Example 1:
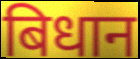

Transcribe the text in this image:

बिधान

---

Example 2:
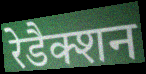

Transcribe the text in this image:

रेडैक्शन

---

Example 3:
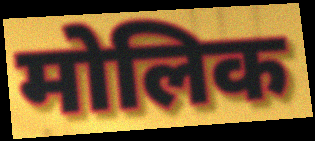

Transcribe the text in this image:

मोलिक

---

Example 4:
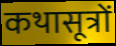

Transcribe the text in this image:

कथासूत्रों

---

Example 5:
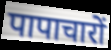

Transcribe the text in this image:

पापाचारों